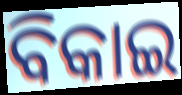
ବିକାଇ